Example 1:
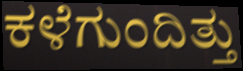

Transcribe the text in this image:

ಕಳೆಗುಂದಿತ್ತು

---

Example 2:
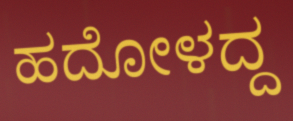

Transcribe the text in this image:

ಹದೋಳದ್ದ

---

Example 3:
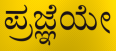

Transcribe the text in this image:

ಪ್ರಜ್ಞೆಯೇ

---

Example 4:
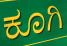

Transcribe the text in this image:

ಕೂಗಿ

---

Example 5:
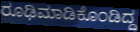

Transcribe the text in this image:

ರೂಢಿಮಾಡಿಕೊಂಡಿದ್ದ